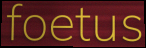
foetus